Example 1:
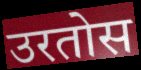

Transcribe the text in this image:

उरतोस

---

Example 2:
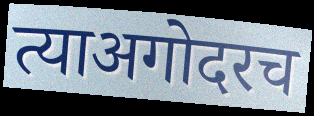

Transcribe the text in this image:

त्याअगोदरच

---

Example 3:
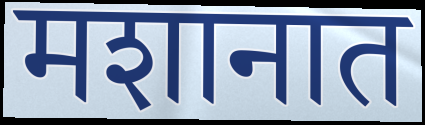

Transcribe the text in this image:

मशानात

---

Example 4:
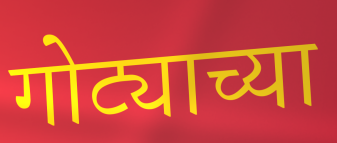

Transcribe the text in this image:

गोट्याच्या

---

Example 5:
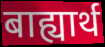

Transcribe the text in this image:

बाह्यार्थ